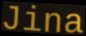
Jina